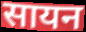
सायन